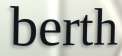
berth